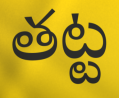
తట్ట